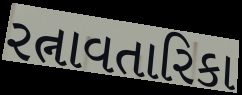
રત્નાવતારિકા